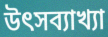
উৎসব্যাখ্যা